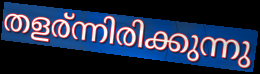
തളര്ന്നിരിക്കുന്നു